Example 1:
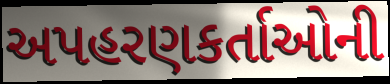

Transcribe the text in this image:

અપહરણકર્તાઓની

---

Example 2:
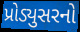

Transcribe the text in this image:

પ્રોડ્યુસરનો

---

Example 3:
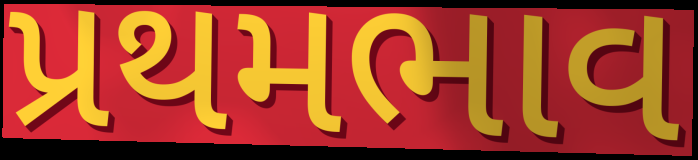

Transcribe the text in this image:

પ્રથમભાવ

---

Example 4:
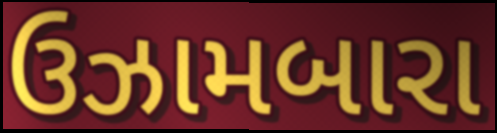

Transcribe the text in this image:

ઉઝામબારા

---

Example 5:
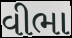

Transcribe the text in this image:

વીભા